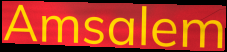
Amsalem